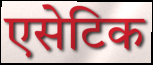
एसेटिक